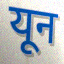
यून